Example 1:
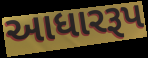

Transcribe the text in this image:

આધારરૂપ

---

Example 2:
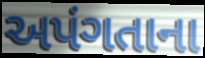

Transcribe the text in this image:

અપંગતાના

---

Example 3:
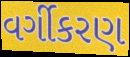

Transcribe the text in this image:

વર્ગીકરણ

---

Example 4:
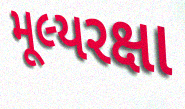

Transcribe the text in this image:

મૂલ્યરક્ષા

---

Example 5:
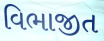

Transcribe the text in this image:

વિભાજીત